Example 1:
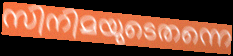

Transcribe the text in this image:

സിനിമയുടെതന്നെ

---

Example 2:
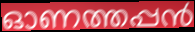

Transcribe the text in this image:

ഓണത്തപ്പൻ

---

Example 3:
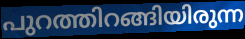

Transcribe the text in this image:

പുറത്തിറങ്ങിയിരുന്ന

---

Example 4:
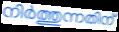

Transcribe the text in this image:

നിർത്തുന്നതിന്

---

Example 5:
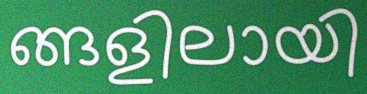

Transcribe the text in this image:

ങ്ങളിലായി